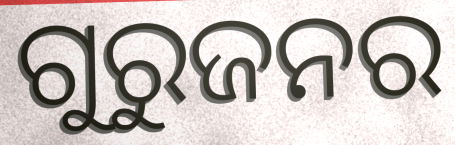
ଗୁରୁଜନର